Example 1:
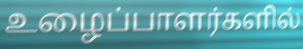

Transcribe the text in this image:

உழைப்பாளர்களில்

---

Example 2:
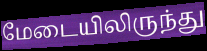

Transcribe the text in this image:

மேடையிலிருந்து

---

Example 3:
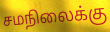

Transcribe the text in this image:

சமநிலைக்கு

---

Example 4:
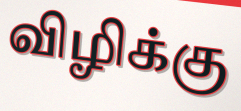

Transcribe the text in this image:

விழிக்கு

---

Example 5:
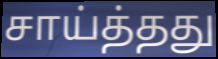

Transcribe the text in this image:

சாய்த்தது